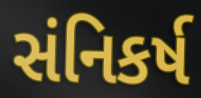
સંનિકર્ષ